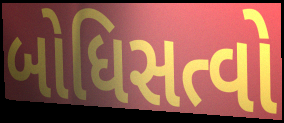
બોધિસત્વો